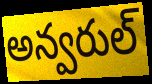
అన్వరుల్